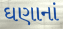
ઘણાનાં